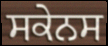
ਸਕੇਨਸ